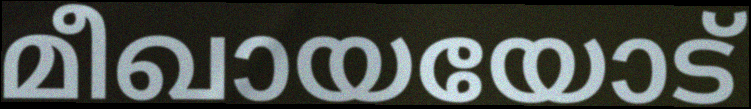
മീഖായയോട്